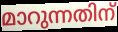
മാറുന്നതിന്